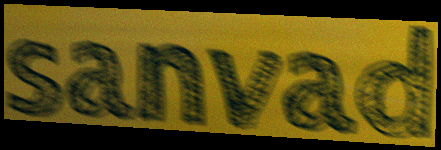
sanvad